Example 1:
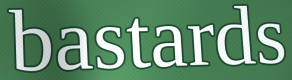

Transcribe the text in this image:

bastards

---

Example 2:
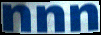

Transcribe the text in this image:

nnn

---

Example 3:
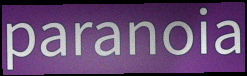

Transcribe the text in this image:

paranoia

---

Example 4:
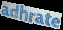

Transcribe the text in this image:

adhrate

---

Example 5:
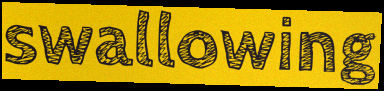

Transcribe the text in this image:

swallowing